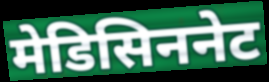
मेडिसिननेट